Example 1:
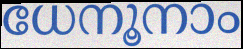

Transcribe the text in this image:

ധേനൂനാം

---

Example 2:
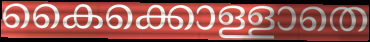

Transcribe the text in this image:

കൈക്കൊള്ളാതെ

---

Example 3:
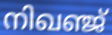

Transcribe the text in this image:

നിഖഞ്ജ്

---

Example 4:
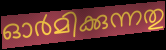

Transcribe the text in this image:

ഓർമിക്കുന്നതു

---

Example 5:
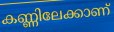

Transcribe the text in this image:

കണ്ണിലേക്കാണ്